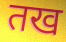
तख